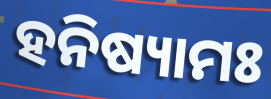
ହନିଷ୍ୟାମଃ